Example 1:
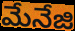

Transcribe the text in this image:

మేనేజి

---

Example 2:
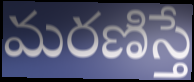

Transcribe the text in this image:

మరణిస్తే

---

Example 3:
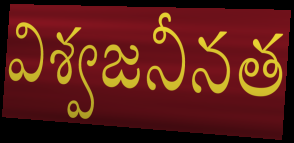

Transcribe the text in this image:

విశ్వజనీనత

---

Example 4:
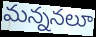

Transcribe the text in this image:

మన్ననలూ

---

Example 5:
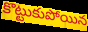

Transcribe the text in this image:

కొట్టుకుపోయిన